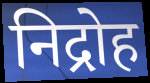
निद्रोह